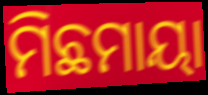
ମିଛମାୟା